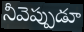
నీవెప్పుడూ